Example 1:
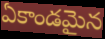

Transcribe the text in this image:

ఏకాండమైన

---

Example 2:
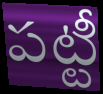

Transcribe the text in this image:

పట్టీ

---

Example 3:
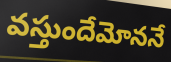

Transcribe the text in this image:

వస్తుందేమోననే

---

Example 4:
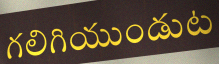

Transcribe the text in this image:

గలిగియుండుట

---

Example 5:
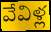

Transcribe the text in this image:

వేవిళ్ల